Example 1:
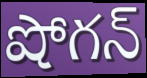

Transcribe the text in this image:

షోగన్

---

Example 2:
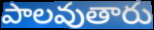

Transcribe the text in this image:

పాలవుతారు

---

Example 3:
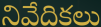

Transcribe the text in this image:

నివేదికలు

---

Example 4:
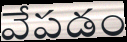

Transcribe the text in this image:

వేపడం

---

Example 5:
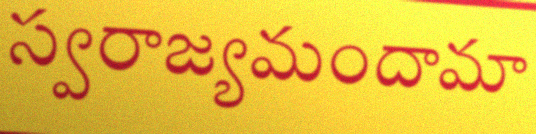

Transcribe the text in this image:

స్వరాజ్యమందామా